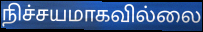
நிச்சயமாகவில்லை